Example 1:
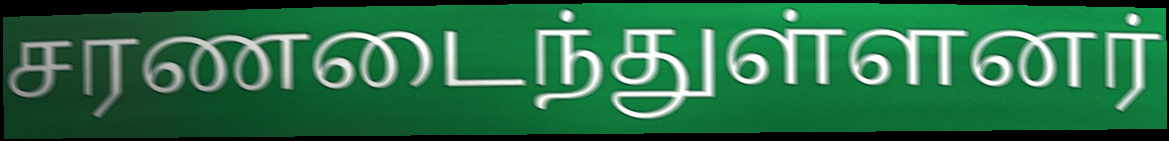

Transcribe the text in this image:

சரணடைந்துள்ளனர்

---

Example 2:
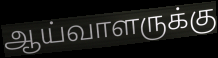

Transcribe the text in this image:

ஆய்வாளருக்கு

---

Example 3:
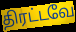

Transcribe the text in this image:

திரட்டவே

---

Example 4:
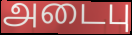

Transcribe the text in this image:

அடைபு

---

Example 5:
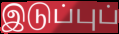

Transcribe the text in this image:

இடுப்புப்